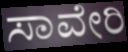
ಸಾವೇರಿ